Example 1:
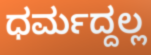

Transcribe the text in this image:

ಧರ್ಮದ್ದಲ್ಲ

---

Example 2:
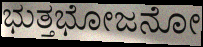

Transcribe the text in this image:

ಭುತ್ತಭೋಜನೋ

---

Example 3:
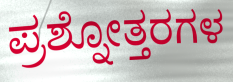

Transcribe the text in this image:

ಪ್ರಶ್ನೋತ್ತರಗಳ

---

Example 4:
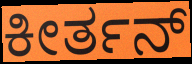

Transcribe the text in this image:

ಕೀರ್ತನ್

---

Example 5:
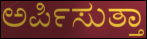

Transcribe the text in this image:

ಅರ್ಪಿಸುತ್ತಾ